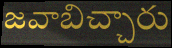
జవాబిచ్చారు